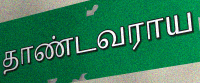
தாண்டவராய